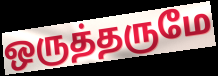
ஒருத்தருமே